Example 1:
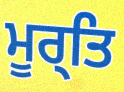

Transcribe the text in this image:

ਮੂਰ੍ਤਿ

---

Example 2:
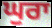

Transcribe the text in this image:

ਘੁਰਾ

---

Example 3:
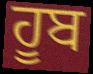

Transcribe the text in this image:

ਹੂਬ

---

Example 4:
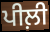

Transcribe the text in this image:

ਪੀਲ਼ੀ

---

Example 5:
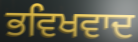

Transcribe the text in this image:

ਭਵਿਖਵਾਦ